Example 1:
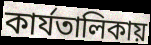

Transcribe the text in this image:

কার্যতালিকায়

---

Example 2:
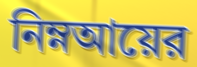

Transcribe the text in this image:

নিম্নআয়ের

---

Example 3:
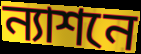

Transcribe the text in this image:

ন্যাশনে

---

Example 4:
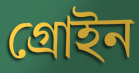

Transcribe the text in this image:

গ্রোইন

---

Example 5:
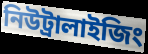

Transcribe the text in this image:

নিউট্রালাইজিং